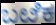
ಬೞಿಕ